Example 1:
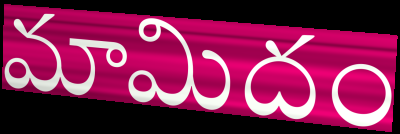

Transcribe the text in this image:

మామిదం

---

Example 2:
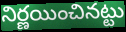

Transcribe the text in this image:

నిర్ణయించినట్టు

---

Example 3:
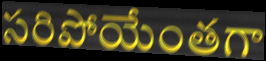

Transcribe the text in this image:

సరిపోయేంతగా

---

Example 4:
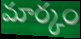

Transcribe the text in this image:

మార్కం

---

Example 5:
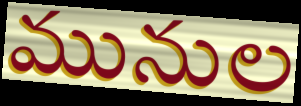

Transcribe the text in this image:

మునుల